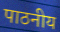
पाठनीय